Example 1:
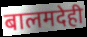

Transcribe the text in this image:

बालमदेही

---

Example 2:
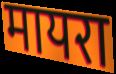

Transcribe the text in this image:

मायरा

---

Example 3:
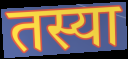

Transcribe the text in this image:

तस्या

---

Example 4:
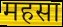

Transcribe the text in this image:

महसा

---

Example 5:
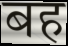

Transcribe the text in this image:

बह